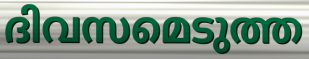
ദിവസമെടുത്ത